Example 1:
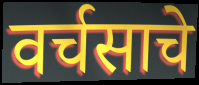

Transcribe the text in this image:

वर्चसाचे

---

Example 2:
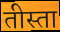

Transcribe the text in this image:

तीस्ता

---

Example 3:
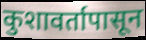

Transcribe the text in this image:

कुशावर्तापासून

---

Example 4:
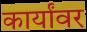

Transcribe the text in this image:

कार्यांवर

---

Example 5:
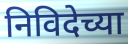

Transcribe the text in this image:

निविदेच्या